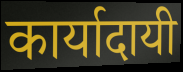
कार्यादायी